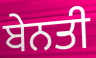
ਬੇਨਤੀ